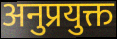
अनुप्रयुक्त